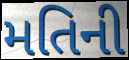
મતિની